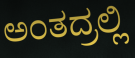
ಅಂತದ್ರಲ್ಲಿ